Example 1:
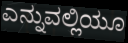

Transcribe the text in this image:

ಎನ್ನುವಲ್ಲಿಯೂ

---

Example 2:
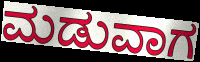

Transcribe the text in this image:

ಮಡುವಾಗ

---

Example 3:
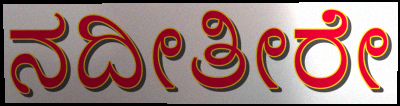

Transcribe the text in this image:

ನದೀತೀರೇ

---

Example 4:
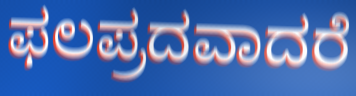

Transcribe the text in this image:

ಫಲಪ್ರದವಾದರೆ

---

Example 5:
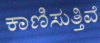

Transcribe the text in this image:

ಕಾಣಿಸುತ್ತಿವೆ